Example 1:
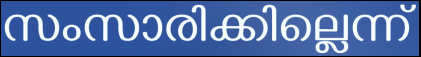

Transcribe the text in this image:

സംസാരിക്കില്ലെന്ന്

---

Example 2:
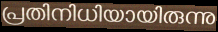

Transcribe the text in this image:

പ്രതിനിധിയായിരുന്നു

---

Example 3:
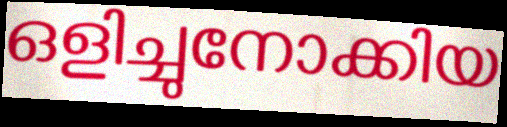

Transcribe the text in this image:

ഒളിച്ചുനോക്കിയ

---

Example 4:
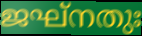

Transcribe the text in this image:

ജഘ്നതുഃ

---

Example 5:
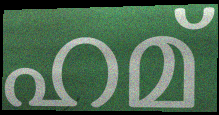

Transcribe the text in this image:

ഹമ്